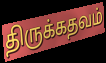
திருக்கதவம்